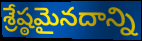
శ్రేష్ఠమైనదాన్ని